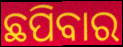
ଛପିବାର